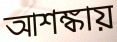
আশঙ্কায়